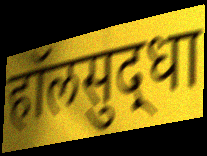
हॉलसुद्धा